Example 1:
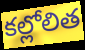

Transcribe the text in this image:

కల్లోలిత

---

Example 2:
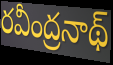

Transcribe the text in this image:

రవీంద్రనాథ్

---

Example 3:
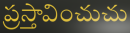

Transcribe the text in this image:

ప్రస్తావించుచు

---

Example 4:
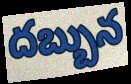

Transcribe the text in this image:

దబ్బున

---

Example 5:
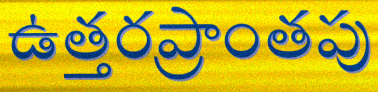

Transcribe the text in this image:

ఉత్తరప్రాంతపు